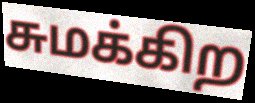
சுமக்கிற